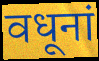
वधूनां